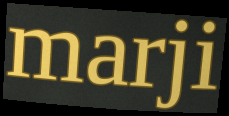
marji